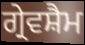
ਗ੍ਰੇਵਸ਼ੈਮ